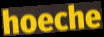
hoeche